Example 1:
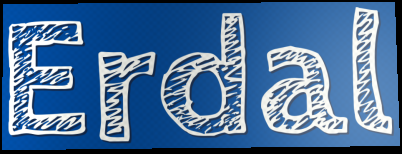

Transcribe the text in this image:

Erdal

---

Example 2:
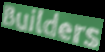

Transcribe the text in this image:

Builders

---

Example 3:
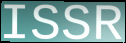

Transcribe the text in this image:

ISSR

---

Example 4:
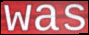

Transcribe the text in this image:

was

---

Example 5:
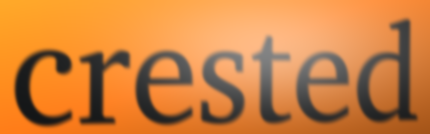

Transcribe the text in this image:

crested